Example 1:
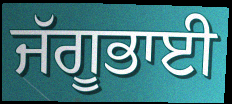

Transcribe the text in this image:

ਜੱਗੂਭਾਈ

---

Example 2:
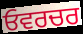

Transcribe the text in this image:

ਓਵਰਚਰ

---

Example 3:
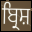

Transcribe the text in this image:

ਬ੍ਰਿਸ਼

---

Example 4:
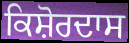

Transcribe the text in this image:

ਕਿਸ਼ੋਰਦਾਸ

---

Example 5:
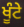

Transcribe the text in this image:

ਖੂੰਟੇ